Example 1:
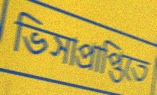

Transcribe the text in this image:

ভিসাপ্রাপ্তিতে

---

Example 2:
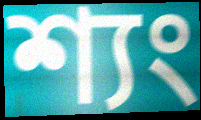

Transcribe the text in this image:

শ্যং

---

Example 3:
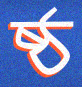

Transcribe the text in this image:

ষ্ঠ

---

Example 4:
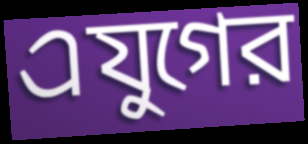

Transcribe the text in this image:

এযুগের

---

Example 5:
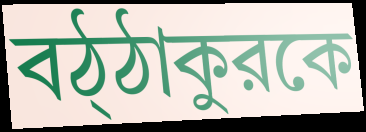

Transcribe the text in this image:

বঠ্ঠাকুরকে